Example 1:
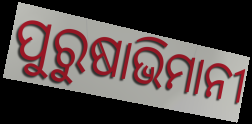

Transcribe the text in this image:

ପୁରୁଷାଭିମାନୀ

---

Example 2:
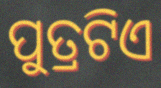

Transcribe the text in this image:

ପୁତ୍ରଟିଏ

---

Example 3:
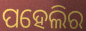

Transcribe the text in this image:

ପହେଲିର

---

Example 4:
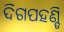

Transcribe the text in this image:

ଦିଗପହଣ୍ଡି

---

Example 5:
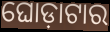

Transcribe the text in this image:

ଘୋଡ଼ାଟାର